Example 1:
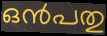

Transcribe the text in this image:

ഒൻപതു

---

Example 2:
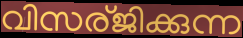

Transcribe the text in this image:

വിസര്ജിക്കുന്ന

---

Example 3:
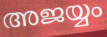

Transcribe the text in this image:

അജയ്യം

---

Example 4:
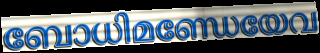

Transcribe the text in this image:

ബോധിമണ്ഡേയേവ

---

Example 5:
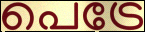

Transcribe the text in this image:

പെട്രേ